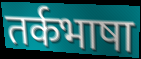
तर्कभाषा